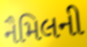
નૈમિલની